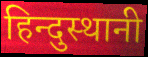
हिन्दुस्थानी